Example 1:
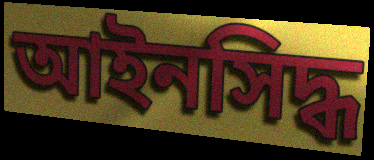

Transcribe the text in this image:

আইনসিদ্ধ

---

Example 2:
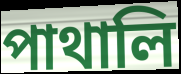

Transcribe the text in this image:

পাথালি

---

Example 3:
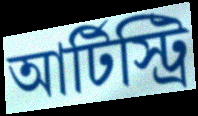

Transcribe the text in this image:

আর্টিস্ট্রি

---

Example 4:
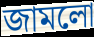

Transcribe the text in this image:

জামলো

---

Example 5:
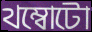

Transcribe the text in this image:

থম্বোটো